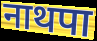
नाथपा